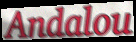
Andalou